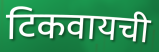
टिकवायची